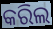
କରିଲ